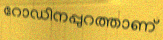
റോഡിനപ്പുറത്താണ്